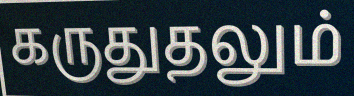
கருதுதலும்